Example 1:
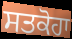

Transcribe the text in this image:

ਸਤਕੋਹਾ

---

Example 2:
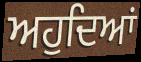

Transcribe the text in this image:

ਅਹੁਦਿਆਂ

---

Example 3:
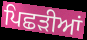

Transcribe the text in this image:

ਪਿਛੜੀਆਂ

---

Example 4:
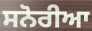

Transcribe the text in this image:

ਸਨੋਰੀਆ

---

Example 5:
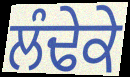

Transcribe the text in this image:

ਲੰਢੇਕੇ